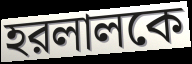
হরলালকে